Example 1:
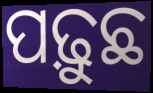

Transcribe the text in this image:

ପଢ଼ୁଛ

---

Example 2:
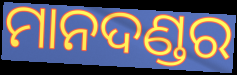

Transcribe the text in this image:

ମାନଦଣ୍ଡର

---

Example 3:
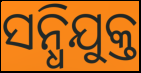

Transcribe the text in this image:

ସନ୍ଧିଯୁକ୍ତ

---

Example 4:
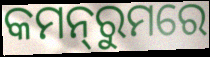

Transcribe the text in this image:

କମନ୍‌ରୁମରେ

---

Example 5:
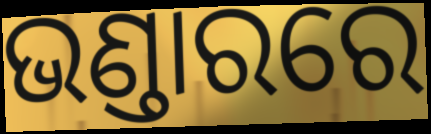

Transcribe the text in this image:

ଭଣ୍ଡାରରେ